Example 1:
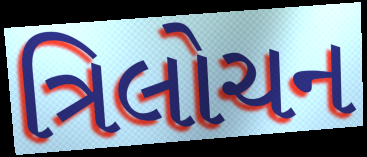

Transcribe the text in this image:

ત્રિલોચન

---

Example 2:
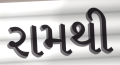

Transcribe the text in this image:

રામથી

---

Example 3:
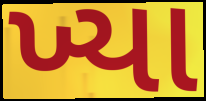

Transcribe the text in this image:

ખ્યા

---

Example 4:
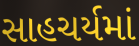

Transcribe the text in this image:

સાહચર્યમાં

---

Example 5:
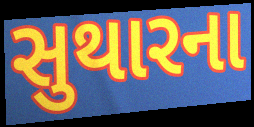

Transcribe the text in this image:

સુથારના